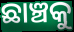
ଛାଞ୍ଚକୁ